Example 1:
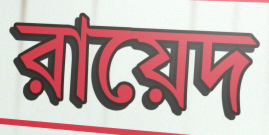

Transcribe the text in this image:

রায়েদ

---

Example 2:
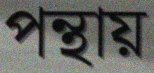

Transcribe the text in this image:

পন্থায়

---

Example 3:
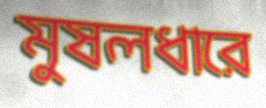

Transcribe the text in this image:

মুষলধারে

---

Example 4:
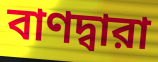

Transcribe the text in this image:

বাণদ্বারা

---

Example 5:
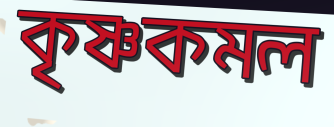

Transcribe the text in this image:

কৃষ্ণকমল